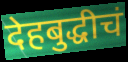
देहबुद्धीचं